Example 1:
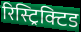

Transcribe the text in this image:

रिस्ट्रिक्टिड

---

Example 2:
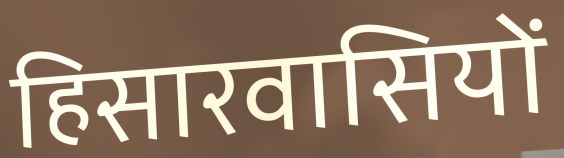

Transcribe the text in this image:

हिसारवासियों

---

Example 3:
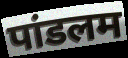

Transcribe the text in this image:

पांडलम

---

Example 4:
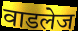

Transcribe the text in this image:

वाडलेज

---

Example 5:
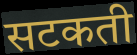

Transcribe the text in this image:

सटकती